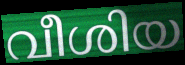
വീശിയ